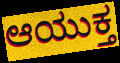
ಆಯುಕ್ತ